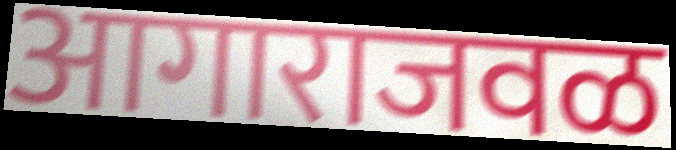
आगाराजवळ